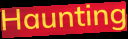
Haunting